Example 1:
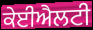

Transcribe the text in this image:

ਕੇਈਐਲਟੀ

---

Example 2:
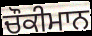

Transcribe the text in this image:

ਚੌਕੀਮਾਨ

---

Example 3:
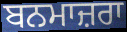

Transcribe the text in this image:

ਬਨਮਾਜ਼ਰਾ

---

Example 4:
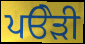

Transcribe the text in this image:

ਪੳੇੜੀ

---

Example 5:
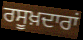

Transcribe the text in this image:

ਰਸੂਖ਼ਦਾਰਾਂ